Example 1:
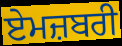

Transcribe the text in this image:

ਏਮਜ਼ਬਰੀ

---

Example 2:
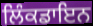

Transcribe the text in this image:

ਲਿੰਕਡਾਇਨ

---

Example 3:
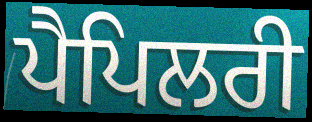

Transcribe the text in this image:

ਪੈਪਿਲਰੀ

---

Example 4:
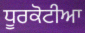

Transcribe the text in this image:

ਧੂਰਕੋਟੀਆ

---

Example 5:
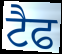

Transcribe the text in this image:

ਟੈਫ